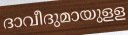
ദാവീദുമായുളള